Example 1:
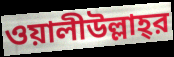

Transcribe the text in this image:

ওয়ালীউল্লাহ্‌র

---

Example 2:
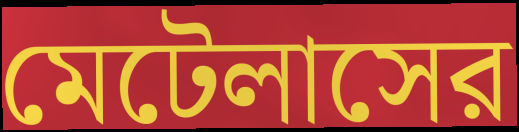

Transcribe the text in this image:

মেটেলাসের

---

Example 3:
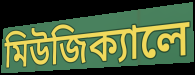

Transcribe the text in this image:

মিউজিক্যালে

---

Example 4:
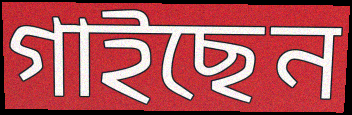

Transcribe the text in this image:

গাইছেন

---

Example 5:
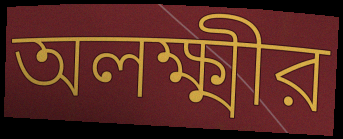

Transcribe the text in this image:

অলক্ষ্মীর